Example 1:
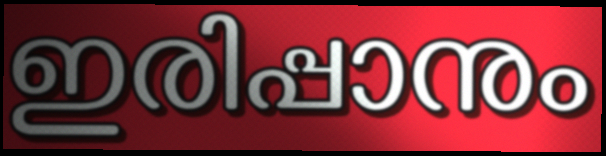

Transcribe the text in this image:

ഇരിപ്പാനും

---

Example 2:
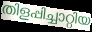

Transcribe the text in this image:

തിളപ്പിച്ചാറ്റിയ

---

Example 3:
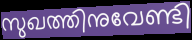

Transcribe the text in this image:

സുഖത്തിനുവേണ്ടി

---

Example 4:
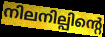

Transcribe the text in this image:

നിലനില്പിന്റെ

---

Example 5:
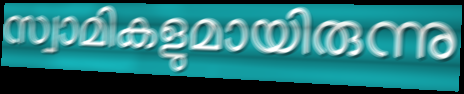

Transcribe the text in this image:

സ്വാമികളുമായിരുന്നു